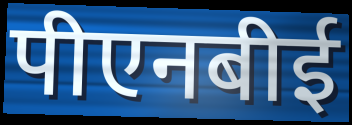
पीएनबीई